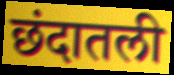
छंदातली